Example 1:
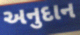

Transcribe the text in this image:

અનુદાન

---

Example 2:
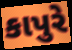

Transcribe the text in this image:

કાપુરે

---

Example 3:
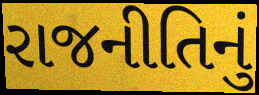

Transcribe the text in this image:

રાજનીતિનું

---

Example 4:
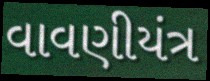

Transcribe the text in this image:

વાવણીયંત્ર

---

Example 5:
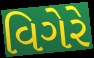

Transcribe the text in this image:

વિગેરે